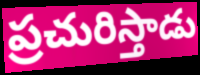
ప్రచురిస్తాడు